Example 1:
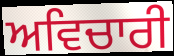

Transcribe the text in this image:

ਅਵਿਚਾਰੀ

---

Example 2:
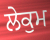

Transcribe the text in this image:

ਲੇਕੁਮ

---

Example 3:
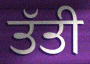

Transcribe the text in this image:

ਤੱਤੀ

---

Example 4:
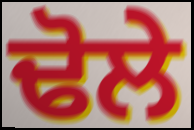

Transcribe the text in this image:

ਢੋਲੇ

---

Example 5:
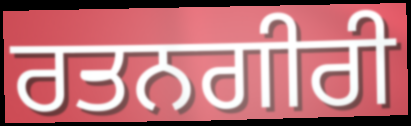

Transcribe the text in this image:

ਰਤਨਗੀਰੀ